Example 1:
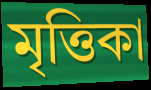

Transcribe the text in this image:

মৃত্তিকা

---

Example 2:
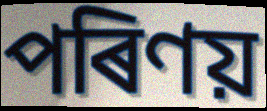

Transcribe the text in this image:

পৰিণয়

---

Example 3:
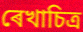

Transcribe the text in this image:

ৰেখাচিত্ৰ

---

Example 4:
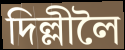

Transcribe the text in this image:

দিল্লীলৈ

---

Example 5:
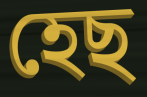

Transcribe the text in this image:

হেছ